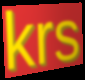
krs